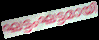
ഘട്ടംഘട്ടമായി